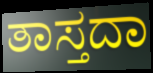
ತಾಸ್ತದಾ